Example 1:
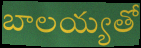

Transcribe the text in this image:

బాలయ్యతో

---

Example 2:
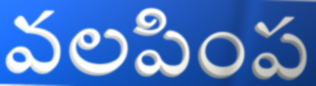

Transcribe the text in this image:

వలపింప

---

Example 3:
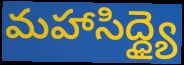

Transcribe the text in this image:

మహాసిద్ధ్యై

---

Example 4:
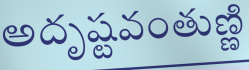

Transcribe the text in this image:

అదృష్టవంతుణ్ణి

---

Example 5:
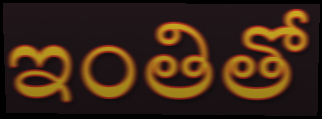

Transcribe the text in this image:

ఇంతితో